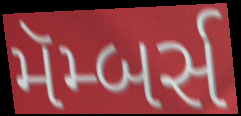
મૅમ્બર્સ